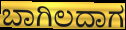
ಬಾಗಿಲದಾಗ